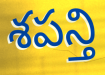
శపన్తి